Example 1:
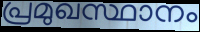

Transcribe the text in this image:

പ്രമുഖസ്ഥാനം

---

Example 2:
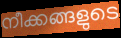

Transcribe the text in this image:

നീക്കങ്ങളുടെ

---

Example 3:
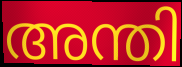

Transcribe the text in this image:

അന്തി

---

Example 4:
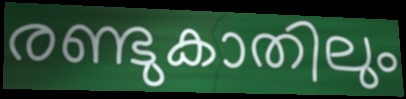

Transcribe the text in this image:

രണ്ടുകാതിലും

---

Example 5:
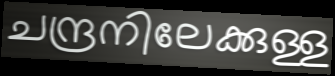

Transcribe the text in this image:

ചന്ദ്രനിലേക്കുള്ള